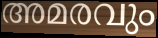
അമരവും